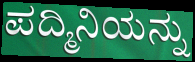
ಪದ್ಮಿನಿಯನ್ನು